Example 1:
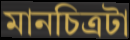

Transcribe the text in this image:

মানচিত্রটা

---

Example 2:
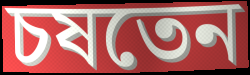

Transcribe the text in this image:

চষতেন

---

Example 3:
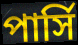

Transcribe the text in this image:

পার্সি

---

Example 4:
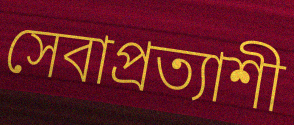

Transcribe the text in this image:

সেবাপ্রত্যাশী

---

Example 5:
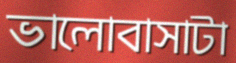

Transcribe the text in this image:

ভালোবাসাটা